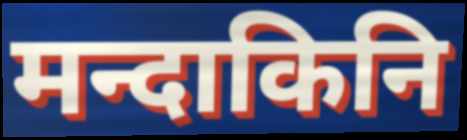
मन्दाकिनि